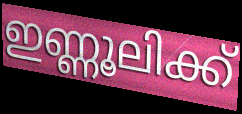
ഇണ്ണൂലിക്ക്